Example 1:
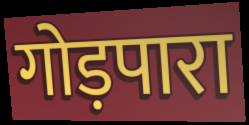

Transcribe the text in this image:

गोड़पारा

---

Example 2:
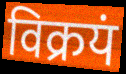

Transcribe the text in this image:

विक्रयं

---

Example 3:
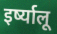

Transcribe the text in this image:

इर्ष्यालू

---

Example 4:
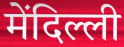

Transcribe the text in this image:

मेंदिल्ली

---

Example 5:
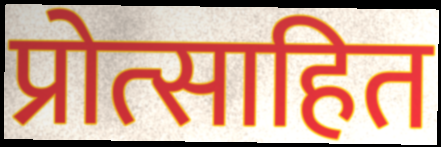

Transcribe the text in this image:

प्रोत्‍साहित